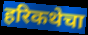
हरिकथेचा